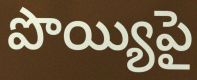
పొయ్యిపై